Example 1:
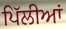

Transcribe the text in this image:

ਪਿੱਲੀਆਂ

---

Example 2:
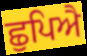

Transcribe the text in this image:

ਛੁਪਿਐ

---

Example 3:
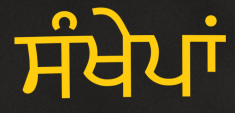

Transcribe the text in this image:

ਸੰਖੇਪਾਂ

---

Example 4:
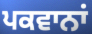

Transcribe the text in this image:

ਪਕਵਾਨਾਂ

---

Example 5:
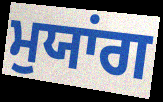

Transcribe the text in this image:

ਮੁਯਾਂਗ